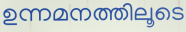
ഉന്നമനത്തിലൂടെ